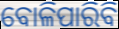
ବୋଳିପାରିବି